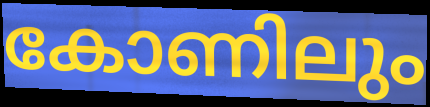
കോണിലും